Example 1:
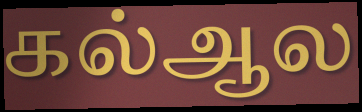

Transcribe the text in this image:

கல்ஆல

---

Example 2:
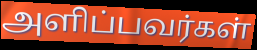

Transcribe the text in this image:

அளிப்பவர்கள்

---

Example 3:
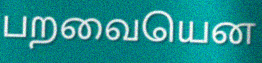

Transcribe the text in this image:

பறவையென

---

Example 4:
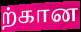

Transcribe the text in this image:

ற்கான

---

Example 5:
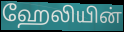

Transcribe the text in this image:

ஹேலியின்